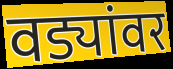
वड्यांवर